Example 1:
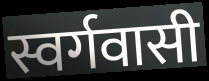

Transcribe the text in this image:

स्वर्गवासी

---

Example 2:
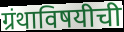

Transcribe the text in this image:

ग्रंथाविषयीची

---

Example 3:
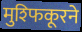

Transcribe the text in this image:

मुश्फिकूरने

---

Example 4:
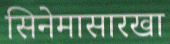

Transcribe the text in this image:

सिनेमासारखा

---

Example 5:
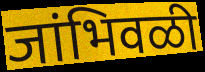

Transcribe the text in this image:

जांभिवळी